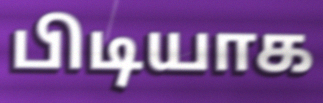
பிடியாக